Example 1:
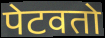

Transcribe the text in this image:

पेटवतो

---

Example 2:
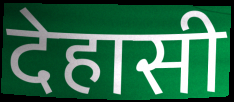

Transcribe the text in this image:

देहासी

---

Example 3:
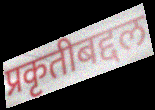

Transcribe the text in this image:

प्रकृतीबद्दल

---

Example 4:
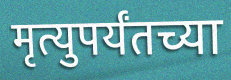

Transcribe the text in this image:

मृत्युपर्यंतच्या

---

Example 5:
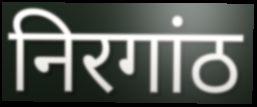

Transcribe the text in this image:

निरगांठ